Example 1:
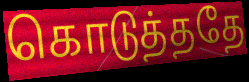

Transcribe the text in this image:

கொடுத்ததே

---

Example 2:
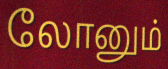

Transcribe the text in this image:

லோனும்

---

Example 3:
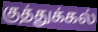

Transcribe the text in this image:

குத்துக்கல்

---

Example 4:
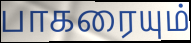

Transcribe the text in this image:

பாகரையும்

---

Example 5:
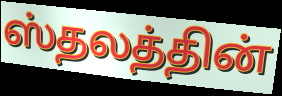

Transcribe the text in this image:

ஸ்தலத்தின்